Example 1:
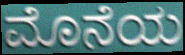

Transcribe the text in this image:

ಮೊನೆಯ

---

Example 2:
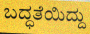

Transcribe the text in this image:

ಬದ್ಧತೆಯಿದ್ದು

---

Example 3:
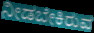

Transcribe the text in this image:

ನೀಡಬೇಕಿರುವ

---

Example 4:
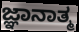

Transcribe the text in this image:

ಜ್ಞಾನಾತ್ಮ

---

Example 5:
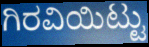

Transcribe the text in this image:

ಗಿರವಿಯಿಟ್ಟು